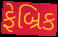
ફેબ્રિક